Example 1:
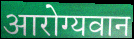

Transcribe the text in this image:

आरोग्यवान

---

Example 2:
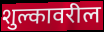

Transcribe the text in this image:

शुल्कावरील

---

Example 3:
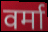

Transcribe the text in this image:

वर्मा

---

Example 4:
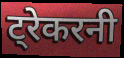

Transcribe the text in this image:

ट्रेकरनी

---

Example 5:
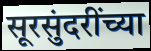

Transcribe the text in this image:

सूरसुंदरींच्या